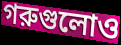
গরুগুলোও